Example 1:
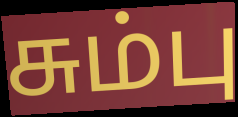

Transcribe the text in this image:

சும்பு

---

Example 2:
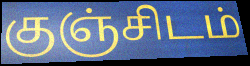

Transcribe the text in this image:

குஞ்சிடம்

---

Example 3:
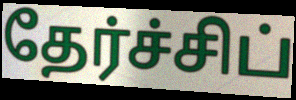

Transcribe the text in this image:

தேர்ச்சிப்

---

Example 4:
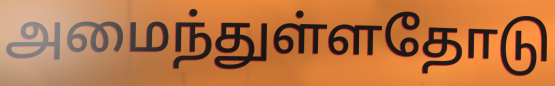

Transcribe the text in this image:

அமைந்துள்ளதோடு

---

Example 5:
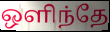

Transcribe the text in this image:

ஒளிந்தே